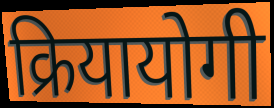
क्रियायोगी